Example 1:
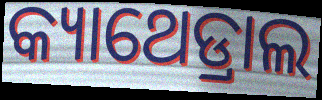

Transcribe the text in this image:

କ୍ୟାଥେଡ୍ରାଲ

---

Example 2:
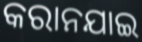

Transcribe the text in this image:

କରାନଯାଇ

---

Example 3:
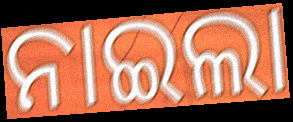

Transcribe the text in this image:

ନାଇଲା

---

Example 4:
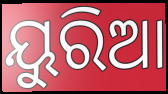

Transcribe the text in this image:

ୟୁରିଆ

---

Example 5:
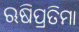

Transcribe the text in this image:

ଋଷିପ୍ରତିମା